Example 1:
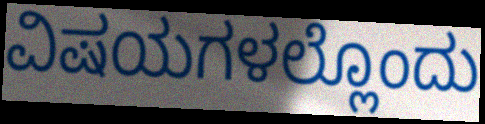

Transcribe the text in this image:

ವಿಷಯಗಳಲ್ಲೊಂದು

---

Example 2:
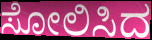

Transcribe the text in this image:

ಸೋಲಿಸಿದ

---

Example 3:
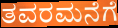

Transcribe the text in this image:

ತವರಮನೆಗೆ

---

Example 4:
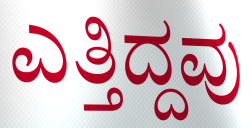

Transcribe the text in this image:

ಎತ್ತಿದ್ದವು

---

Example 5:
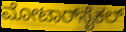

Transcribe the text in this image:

ಮೋಟಾರ್‌ಸೈಕಲ್